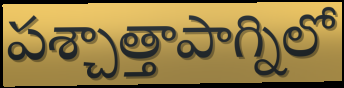
పశ్చాత్తాపాగ్నిలో